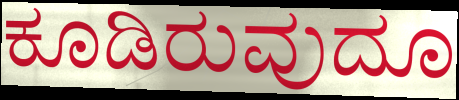
ಕೂಡಿರುವುದೂ